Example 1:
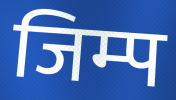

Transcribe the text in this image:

जिम्प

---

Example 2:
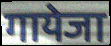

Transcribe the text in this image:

गायेजा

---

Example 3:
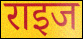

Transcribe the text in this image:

राइज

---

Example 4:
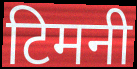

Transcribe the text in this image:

टिमनी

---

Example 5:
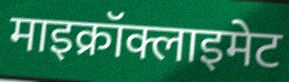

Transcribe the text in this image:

माइक्रॉक्लाइमेट